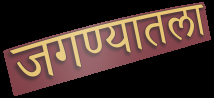
जगण्यातला